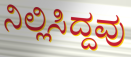
ನಿಲ್ಲಿಸಿದ್ದವು